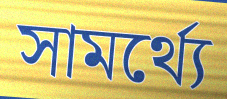
সামর্থ্যে